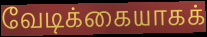
வேடிக்கையாகக்